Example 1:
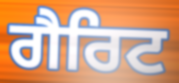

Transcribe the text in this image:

ਗੈਰਿਟ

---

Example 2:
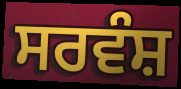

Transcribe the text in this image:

ਸਰਵੰਸ਼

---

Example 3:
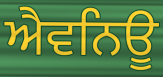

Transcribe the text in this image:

ਐਵਨਿਊ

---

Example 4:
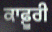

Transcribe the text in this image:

ਕਾਫ਼ੂਰੀ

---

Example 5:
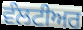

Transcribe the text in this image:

ਵੰਲਟੀਅਰ